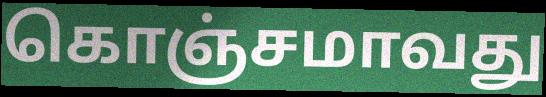
கொஞ்சமாவது